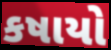
કષાયો